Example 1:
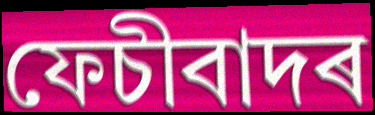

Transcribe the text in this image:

ফেচীবাদৰ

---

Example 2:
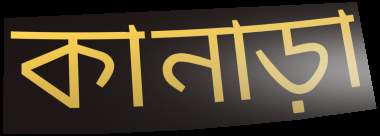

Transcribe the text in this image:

কানাড়া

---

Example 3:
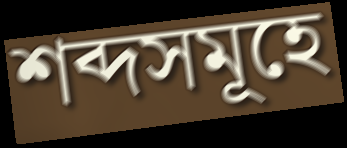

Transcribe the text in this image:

শব্দসমূহে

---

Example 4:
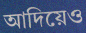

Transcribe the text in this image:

আদিয়েও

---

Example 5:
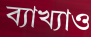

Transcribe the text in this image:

ব্যাখ্যাও